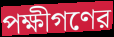
পক্ষীগণের